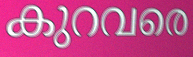
കുറവരെ